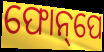
ଫୋନ୍‌ପେ